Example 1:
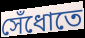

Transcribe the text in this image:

সেঁধোতে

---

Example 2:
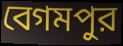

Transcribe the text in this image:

বেগমপুর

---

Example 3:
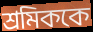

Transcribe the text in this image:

শ্রমিককে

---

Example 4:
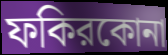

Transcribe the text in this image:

ফকিরকোনা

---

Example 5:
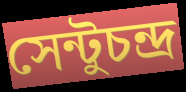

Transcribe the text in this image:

সেন্টুচন্দ্র